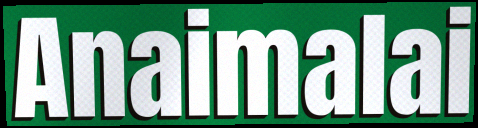
Anaimalai